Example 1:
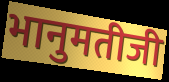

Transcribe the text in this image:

भानुमतीजी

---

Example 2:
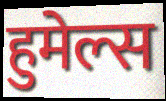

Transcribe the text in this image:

हुमेल्स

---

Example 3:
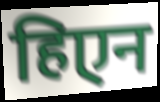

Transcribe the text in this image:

हिएन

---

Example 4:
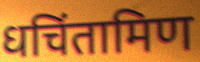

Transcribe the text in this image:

धचिंतामिण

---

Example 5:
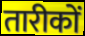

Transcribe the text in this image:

तारीकों